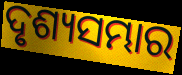
ଦୃଶ୍ୟସମ୍ଭାର